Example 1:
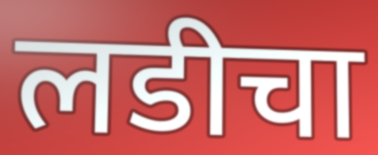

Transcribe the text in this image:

लडीचा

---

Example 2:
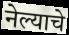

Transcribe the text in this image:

नेल्याचे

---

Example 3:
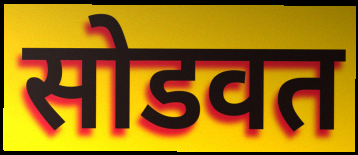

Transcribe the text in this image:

सोडवत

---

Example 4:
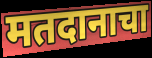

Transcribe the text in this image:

मतदानाचा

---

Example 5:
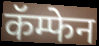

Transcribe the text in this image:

कॅम्फेन